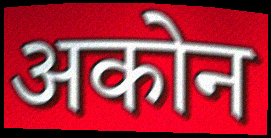
अकोन